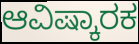
ಆವಿಷ್ಕಾರಕ